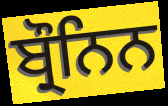
ਬ੍ਰੌਨਿਨ